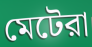
মেটেরা